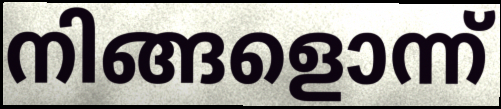
നിങ്ങളൊന്ന്